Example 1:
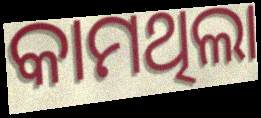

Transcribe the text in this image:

କାମଥିଲା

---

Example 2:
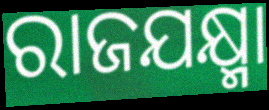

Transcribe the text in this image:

ରାଜଯକ୍ଷ୍ମା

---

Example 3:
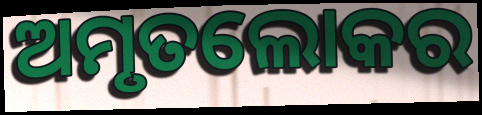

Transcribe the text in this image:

ଅମୃତଲୋକର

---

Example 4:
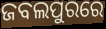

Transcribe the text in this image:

ଜବଲପୁରରେ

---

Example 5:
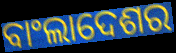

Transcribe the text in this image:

ବାଂଲାଦେଶର